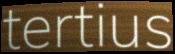
tertius